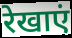
रेखाएं